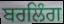
ਬਰਲਿੰਗ